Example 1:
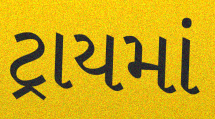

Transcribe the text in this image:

ટ્રાયમાં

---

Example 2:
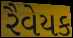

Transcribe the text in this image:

રૈવેયક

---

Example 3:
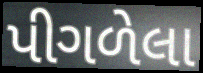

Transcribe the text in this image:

પીગળેલા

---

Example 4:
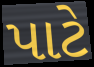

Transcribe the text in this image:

પાટે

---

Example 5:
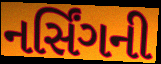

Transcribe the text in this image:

નર્સિંગની